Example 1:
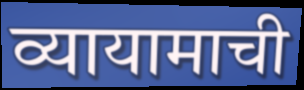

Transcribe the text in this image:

व्यायामाची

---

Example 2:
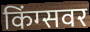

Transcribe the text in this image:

किंग्सवर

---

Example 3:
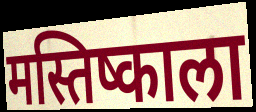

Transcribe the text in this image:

मस्तिष्काला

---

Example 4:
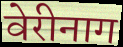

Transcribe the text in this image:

वेरीनाग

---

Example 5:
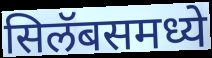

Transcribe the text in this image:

सिलॅबसमध्ये